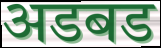
अडबड